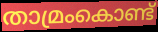
താമ്രംകൊണ്ട്